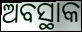
ଅବସ୍ଥାକ